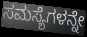
ಸಮಸ್ಯೆಗಳನ್ನೇ